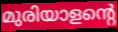
മുരിയാളന്റെ